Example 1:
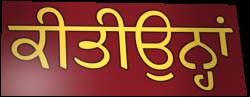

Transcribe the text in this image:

ਕੀਤੀਉਨ੍ਹਾਂ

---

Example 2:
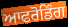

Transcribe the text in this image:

ਆਫਰੋਡਿੰਗ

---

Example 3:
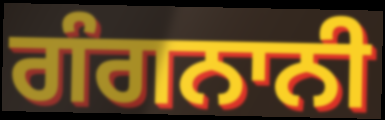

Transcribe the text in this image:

ਗੰਗਨਾਨੀ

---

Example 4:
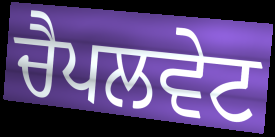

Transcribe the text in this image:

ਚੈਪਲਵੇਟ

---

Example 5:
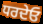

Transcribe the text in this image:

ਧਰਦੇਓ